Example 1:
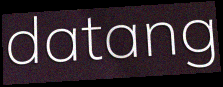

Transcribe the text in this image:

datang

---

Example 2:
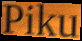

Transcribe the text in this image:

Piku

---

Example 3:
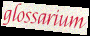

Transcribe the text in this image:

glossarium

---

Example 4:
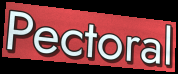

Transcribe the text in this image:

Pectoral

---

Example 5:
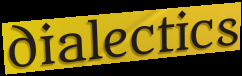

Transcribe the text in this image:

dialectics